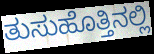
ತುಸುಹೊತ್ತಿನಲ್ಲಿ